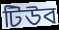
টিউব